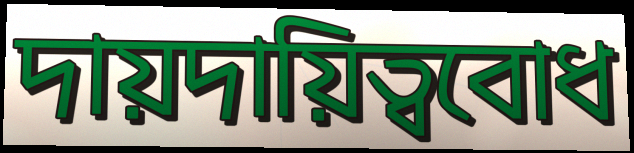
দায়দায়িত্ববোধ